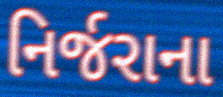
નિર્જરાના